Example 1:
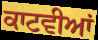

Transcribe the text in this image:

ਕਾਟਵੀਆਂ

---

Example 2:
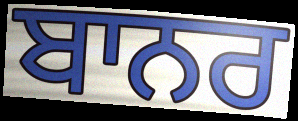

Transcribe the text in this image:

ਬਾਨਰ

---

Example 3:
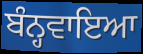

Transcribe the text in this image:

ਬੰਨ੍ਹਵਾਇਆ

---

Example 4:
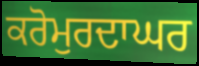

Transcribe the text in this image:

ਕਰੋਮੁਰਦਾਘਰ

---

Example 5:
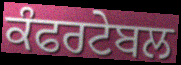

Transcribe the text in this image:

ਕੰਫਰਟੇਬਲ